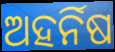
ଅହର୍ନିଷ